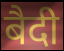
बैदी